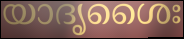
യാദൃശൈഃ